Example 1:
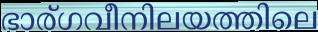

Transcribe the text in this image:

ഭാര്ഗവീനിലയത്തിലെ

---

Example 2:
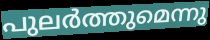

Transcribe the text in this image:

പുലർത്തുമെന്നു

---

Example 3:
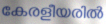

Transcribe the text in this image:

കേരളീയരിൽ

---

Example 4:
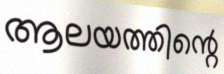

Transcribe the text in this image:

ആലയത്തിന്റെ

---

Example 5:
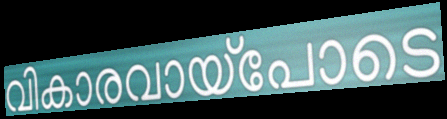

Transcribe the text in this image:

വികാരവായ്പോടെ